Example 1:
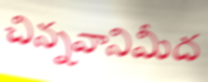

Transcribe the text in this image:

చిన్నవానిమీద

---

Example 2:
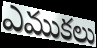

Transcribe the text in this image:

ఎముకలు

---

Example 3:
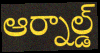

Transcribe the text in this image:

ఆర్నాల్డ్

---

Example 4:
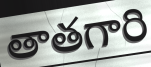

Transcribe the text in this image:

తాతగారి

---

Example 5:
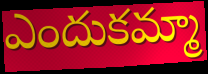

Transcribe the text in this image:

ఎందుకమ్మా